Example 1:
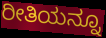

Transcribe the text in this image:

ರೀತಿಯನ್ನೂ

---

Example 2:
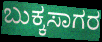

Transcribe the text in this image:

ಬುಕ್ಕಸಾಗರ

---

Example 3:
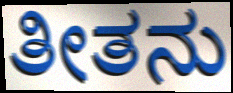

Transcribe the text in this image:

ತೀತನು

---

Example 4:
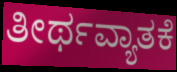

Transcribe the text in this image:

ತೀರ್ಥವ್ಯಾತಕೆ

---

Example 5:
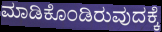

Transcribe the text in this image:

ಮಾಡಿಕೊಂಡಿರುವುದಕ್ಕೆ